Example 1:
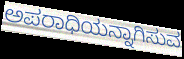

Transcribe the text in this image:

ಅಪರಾಧಿಯನ್ನಾಗಿಸುವ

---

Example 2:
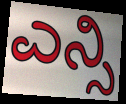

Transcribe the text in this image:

ಎನ್ಸಿ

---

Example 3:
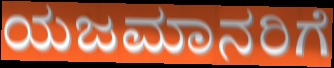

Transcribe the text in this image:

ಯಜಮಾನರಿಗೆ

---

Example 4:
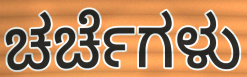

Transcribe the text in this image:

ಚರ್ಚೆಗಳು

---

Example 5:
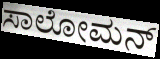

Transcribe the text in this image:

ಸಾಲೋಮನ್